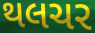
થલચર